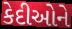
કેદીઓને